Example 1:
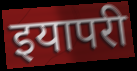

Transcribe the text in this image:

इयापरी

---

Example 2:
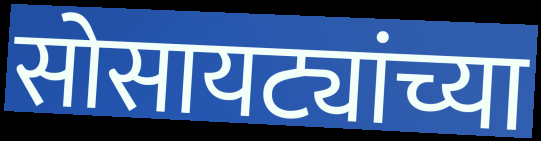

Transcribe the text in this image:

सोसायट्यांच्या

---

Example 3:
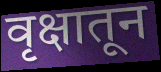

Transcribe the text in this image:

वृक्षातून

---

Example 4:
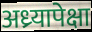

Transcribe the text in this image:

अध्र्यापेक्षा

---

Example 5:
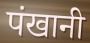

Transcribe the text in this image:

पंखानी